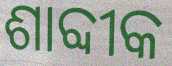
ଶାବ୍ଦୀକ